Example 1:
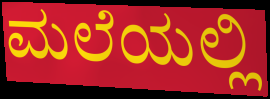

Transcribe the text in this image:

ಮಲೆಯಲ್ಲಿ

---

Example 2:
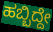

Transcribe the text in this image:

ಹಬ್ಬಿದ್ದೇ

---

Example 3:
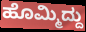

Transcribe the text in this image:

ಹೊಮ್ಮಿದ್ದು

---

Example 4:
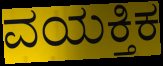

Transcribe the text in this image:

ವಯಕ್ತಿಕ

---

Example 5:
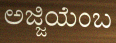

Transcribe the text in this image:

ಅಜ್ಜಿಯೆಂಬ